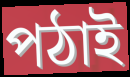
পঠাই